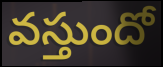
వస్తుందో